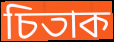
চিতাক